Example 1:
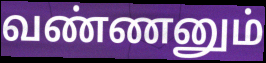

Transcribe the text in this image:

வண்ணனும்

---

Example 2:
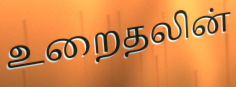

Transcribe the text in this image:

உறைதலின்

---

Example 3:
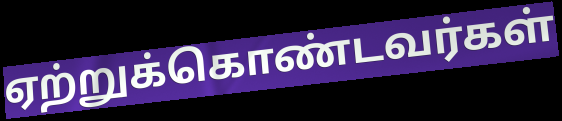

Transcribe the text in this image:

ஏற்றுக்கொண்டவர்கள்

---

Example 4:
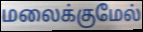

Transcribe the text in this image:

மலைக்குமேல்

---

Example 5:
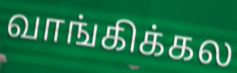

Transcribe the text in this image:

வாங்கிக்கல